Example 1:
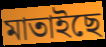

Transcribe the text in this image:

মাতাইছে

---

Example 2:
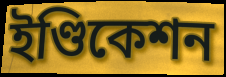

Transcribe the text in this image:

ইণ্ডিকেশন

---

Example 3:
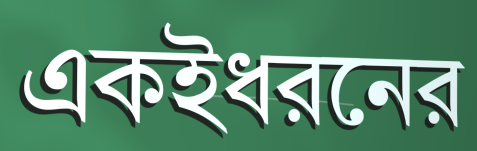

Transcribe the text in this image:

একইধরনের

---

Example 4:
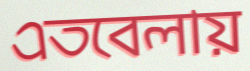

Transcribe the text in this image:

এতবেলায়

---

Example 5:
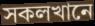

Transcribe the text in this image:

সকলখানে